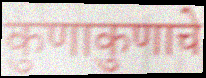
कुणाकुणाचे